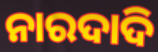
ନାରଦାଦି